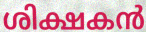
ശിക്ഷകൻ